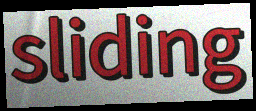
sliding